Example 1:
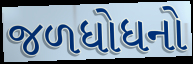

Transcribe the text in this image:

જળધોધનો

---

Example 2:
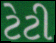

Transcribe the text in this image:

ટેટી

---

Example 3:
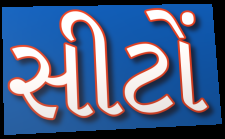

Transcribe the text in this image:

સીટોં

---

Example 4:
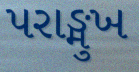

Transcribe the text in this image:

પરાઙ્મુખ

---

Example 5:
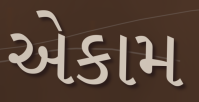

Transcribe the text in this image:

એકામ